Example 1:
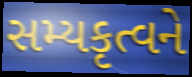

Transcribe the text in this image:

સમ્યકૃત્વને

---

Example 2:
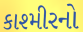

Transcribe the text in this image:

કાશ્મીરનો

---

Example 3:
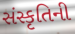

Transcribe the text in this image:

સંસ્કૃતિની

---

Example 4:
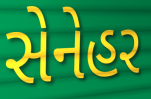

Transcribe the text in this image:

સેનેહર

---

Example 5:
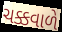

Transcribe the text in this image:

ચક્કવાળે